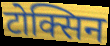
टोक्सिन